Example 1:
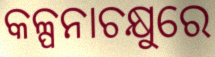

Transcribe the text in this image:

କଳ୍ପନାଚକ୍ଷୁରେ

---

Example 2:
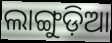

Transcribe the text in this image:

ଲାଙ୍ଗୁଡ଼ିଆ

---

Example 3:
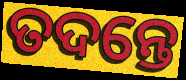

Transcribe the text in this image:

ତଦନ୍ତେ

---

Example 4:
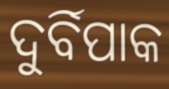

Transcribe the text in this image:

ଦୁର୍ବିପାକ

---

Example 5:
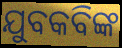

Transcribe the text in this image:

ଯୁବକବିଙ୍କ